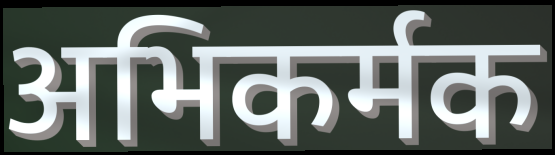
अभिकर्मक